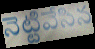
నెట్టివేసిన